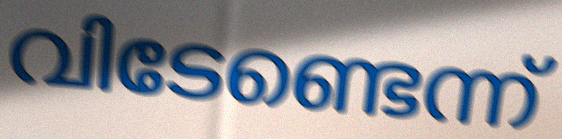
വിടേണ്ടെന്ന്